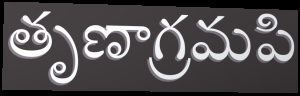
తృణాగ్రమపి